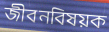
জীবনবিষয়ক